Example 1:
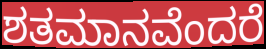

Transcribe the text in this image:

ಶತಮಾನವೆಂದರೆ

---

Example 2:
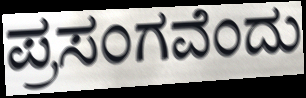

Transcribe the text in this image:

ಪ್ರಸಂಗವೆಂದು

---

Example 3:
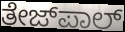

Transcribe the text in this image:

ತೇಜ್‌ಪಾಲ್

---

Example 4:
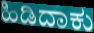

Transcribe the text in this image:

ಹಿಡಿದಾಕು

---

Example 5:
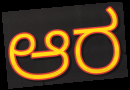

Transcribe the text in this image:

ಆರ